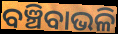
ବଞ୍ଚିବାଭଳି